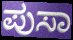
ಪುಸಾ